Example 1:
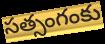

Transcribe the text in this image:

సత్సంగంకు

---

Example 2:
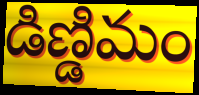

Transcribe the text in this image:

డిణ్డిమం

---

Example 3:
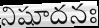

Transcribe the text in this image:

నిషూదనః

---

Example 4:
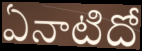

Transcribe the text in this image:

ఏనాటిదో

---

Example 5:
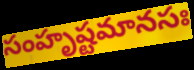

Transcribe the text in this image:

సంహృష్టమానసః